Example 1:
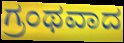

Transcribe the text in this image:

ಗ್ರಂಥವಾದ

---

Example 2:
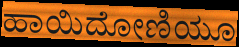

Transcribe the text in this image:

ಹಾಯಿದೋಣಿಯೂ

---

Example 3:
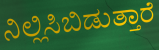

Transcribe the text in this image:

ನಿಲ್ಲಿಸಿಬಿಡುತ್ತಾರೆ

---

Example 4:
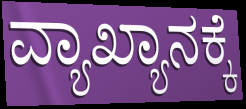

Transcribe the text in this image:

ವ್ಯಾಖ್ಯಾನಕ್ಕೆ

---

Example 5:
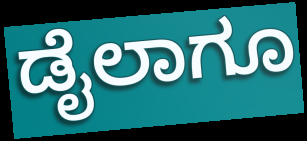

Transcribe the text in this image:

ಡೈಲಾಗೂ